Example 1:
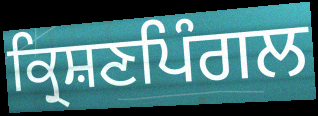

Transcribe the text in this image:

ਕ੍ਰਿਸ਼ਣਪਿੰਗਲ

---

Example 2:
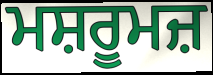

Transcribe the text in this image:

ਮਸ਼ਰੂਮਜ਼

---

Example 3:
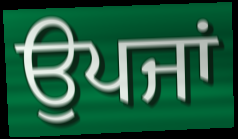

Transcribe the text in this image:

ਉਪਜਾਂ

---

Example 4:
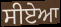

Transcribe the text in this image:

ਸੀਏਆ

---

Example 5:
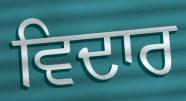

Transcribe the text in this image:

ਵਿਦਾਰ